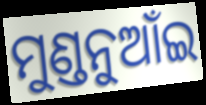
ମୁଣ୍ଡନୁଆଁଇ